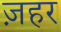
ज़हर